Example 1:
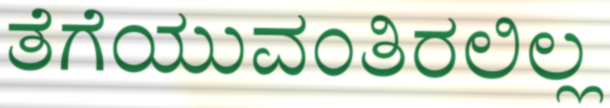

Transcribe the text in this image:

ತೆಗೆಯುವಂತಿರಲಿಲ್ಲ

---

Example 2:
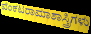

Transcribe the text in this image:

ವೆಂಕಟರಾಮಾಶಾಸ್ತ್ರಿಗಳು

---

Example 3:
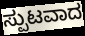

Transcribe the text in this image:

ಸ್ಪುಟವಾದ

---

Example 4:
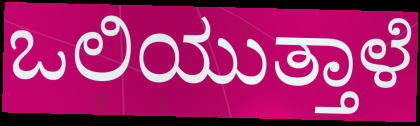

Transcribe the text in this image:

ಒಲಿಯುತ್ತಾಳೆ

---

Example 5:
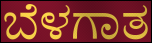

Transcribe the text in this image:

ಬೆಳಗಾತ